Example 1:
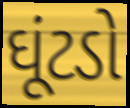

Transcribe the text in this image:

ઘૂંટડો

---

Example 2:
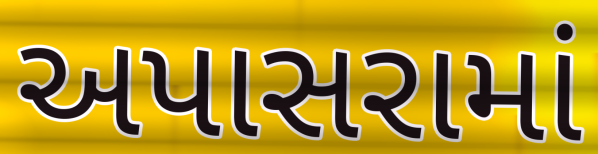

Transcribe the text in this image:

અપાસરામાં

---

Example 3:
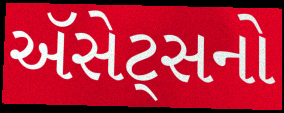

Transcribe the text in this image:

ઍસેટ્સનો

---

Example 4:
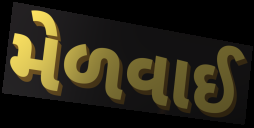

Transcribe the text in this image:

મેળવાઈ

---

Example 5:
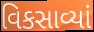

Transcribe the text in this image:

વિકસાવ્યાં